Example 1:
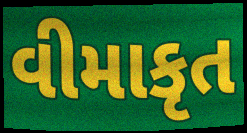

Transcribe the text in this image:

વીમાકૃત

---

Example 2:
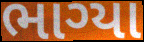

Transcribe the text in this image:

ભાગ્યા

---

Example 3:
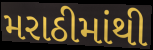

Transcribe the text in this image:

મરાઠીમાંથી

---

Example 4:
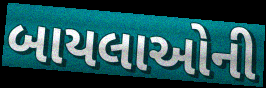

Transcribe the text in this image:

બાયલાઓની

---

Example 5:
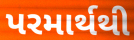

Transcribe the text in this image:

પરમાર્થથી